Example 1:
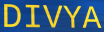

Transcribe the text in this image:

DIVYA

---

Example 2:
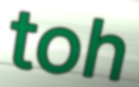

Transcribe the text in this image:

toh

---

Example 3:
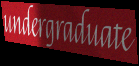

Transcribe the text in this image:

undergraduate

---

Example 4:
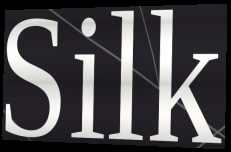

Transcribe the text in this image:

Silk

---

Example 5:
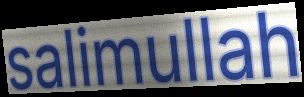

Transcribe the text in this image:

salimullah